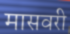
मासवरी